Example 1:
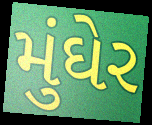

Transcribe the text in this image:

મુંઘેર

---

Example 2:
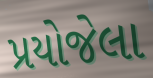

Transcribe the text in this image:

પ્રયોજેલા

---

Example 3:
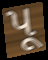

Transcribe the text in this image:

પૂ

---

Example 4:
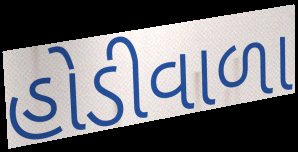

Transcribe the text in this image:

હોડીવાળા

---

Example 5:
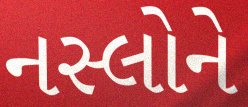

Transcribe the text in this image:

નસ્લોને